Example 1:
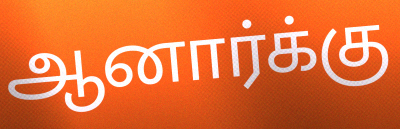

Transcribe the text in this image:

ஆனார்க்கு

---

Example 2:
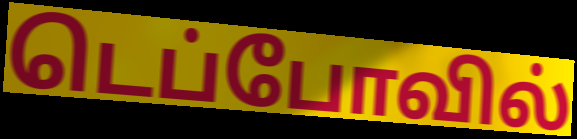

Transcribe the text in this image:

டெப்போவில்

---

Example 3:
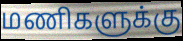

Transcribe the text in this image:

மணிகளுக்கு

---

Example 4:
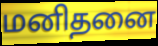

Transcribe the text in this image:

மனிதனை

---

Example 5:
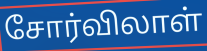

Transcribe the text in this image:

சோர்விலாள்